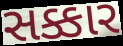
સક્કાર